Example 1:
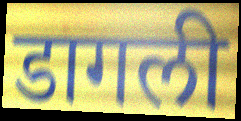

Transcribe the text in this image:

डागली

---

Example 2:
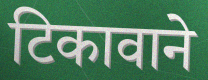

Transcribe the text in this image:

टिकावाने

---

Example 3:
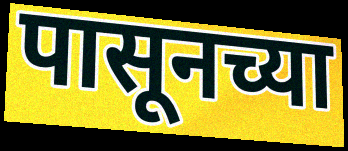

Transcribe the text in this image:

पासूनच्या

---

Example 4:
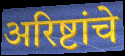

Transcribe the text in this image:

अरिष्टांचे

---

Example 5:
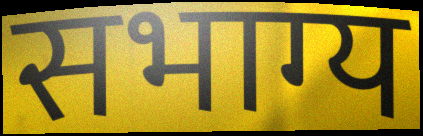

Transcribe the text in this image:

सभाग्य